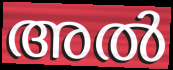
അൽ